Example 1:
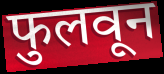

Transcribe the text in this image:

फुलवून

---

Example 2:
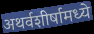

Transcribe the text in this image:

अथर्वशीर्षामध्ये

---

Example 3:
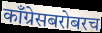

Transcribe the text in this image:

काँग्रेसबरोबरच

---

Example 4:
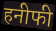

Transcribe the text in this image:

हनीफी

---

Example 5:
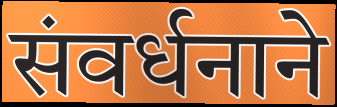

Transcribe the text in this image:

संवर्धनाने